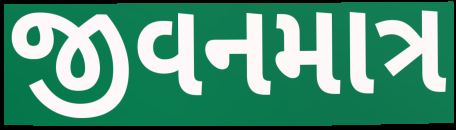
જીવનમાત્ર